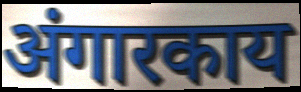
अंगारकाय